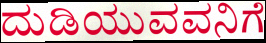
ದುಡಿಯುವವನಿಗೆ